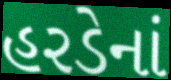
હરડેનાં